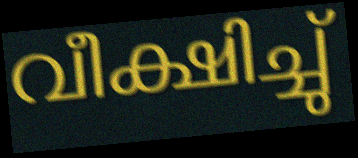
വീക്ഷിച്ചു്